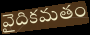
వైదికమతం